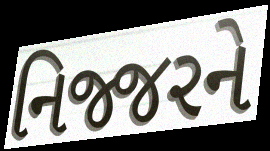
નિજ્જરને